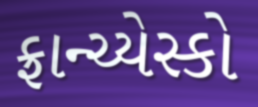
ફ્રાન્ચ્યેસ્કો